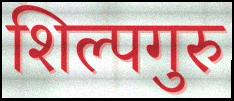
शिल्पगुरु